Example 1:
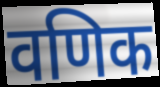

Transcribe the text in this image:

वणिक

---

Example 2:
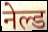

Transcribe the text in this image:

नेल्ड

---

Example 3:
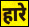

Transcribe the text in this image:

हारे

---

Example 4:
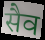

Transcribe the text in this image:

सैव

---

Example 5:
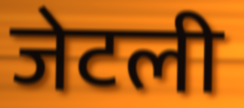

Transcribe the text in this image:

जेटली